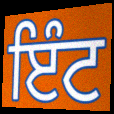
ਇੰਟ